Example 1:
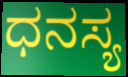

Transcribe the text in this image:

ಧನಸ್ಯ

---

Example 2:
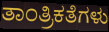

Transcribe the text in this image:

ತಾಂತ್ರಿಕತೆಗಳು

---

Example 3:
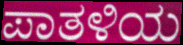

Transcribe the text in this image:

ಪಾತಳಿಯ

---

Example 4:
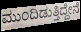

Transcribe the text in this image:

ಮುಂದಿಡುತ್ತಿದ್ದೇನೆ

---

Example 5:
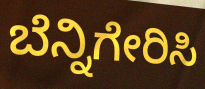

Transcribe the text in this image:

ಬೆನ್ನಿಗೇರಿಸಿ